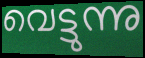
വെട്ടുന്നു